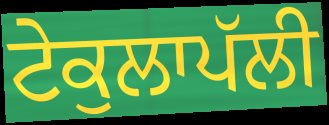
ਟੇਕੁਲਾਪੱਲੀ